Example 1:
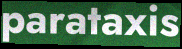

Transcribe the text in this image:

parataxis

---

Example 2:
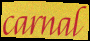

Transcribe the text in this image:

carnal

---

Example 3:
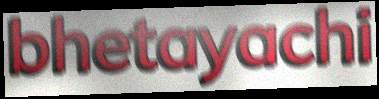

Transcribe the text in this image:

bhetayachi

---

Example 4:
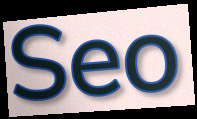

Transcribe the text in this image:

Seo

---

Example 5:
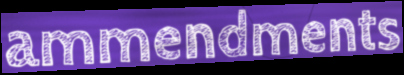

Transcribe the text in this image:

ammendments